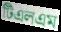
টিএলএম